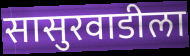
सासुरवाडीला